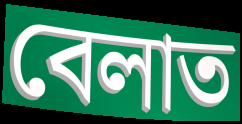
বেলাত